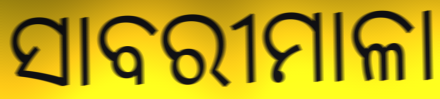
ସାବରୀମାଳା